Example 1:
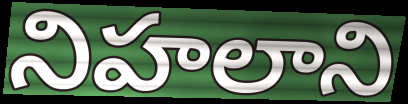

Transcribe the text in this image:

నిహలాని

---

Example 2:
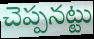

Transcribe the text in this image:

చెప్పనట్టు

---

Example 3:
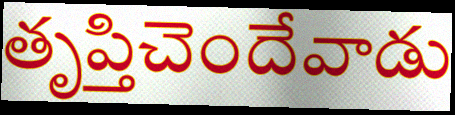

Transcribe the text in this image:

తృప్తిచెందేవాడు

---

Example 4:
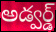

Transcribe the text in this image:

అడ్వర్డ్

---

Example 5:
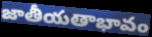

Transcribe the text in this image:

జాతీయతాభావం